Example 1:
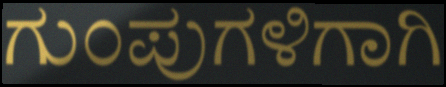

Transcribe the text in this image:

ಗುಂಪುಗಳಿಗಾಗಿ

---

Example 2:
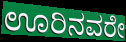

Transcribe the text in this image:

ಊರಿನವರೇ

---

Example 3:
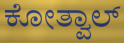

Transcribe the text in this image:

ಕೋತ್ವಾಲ್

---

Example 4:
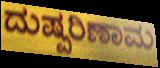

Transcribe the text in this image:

ದುಷ್ಪರಿಣಾಮ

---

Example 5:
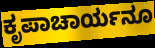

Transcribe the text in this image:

ಕೃಪಾಚಾರ್ಯನೂ